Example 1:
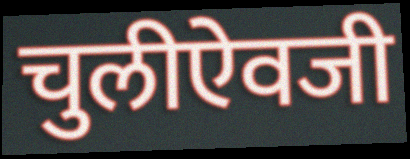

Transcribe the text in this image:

चुलीऐवजी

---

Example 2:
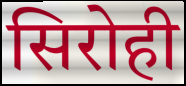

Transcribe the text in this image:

सिरोही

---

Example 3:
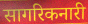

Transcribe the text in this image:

सागरिकनारी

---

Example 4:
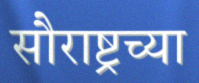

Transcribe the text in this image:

सौराष्ट्रच्या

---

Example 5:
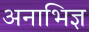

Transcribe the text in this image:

अनाभिज्ञ